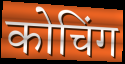
कोचिंग